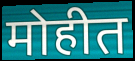
मोहीत